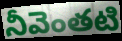
నీవెంతటి